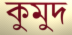
কুমুদ